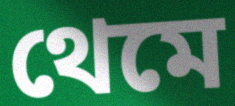
থেমে